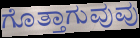
ಗೊತ್ತಾಗುವುವು